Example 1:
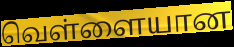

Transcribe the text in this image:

வெள்ளையான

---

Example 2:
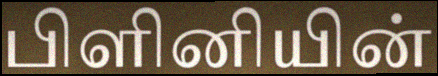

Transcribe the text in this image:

பிளினியின்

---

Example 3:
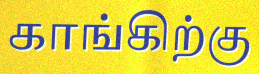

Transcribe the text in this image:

காங்கிற்கு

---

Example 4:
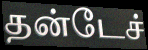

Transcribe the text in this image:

தன்டேச்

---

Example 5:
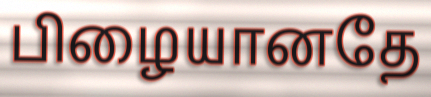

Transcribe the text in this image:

பிழையானதே